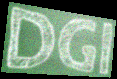
DGI